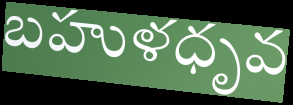
బహుళధృవ